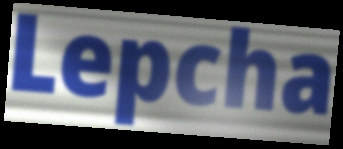
Lepcha